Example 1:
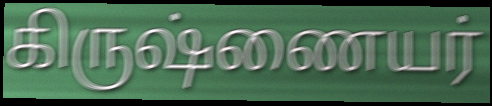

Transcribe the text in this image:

கிருஷ்ணையர்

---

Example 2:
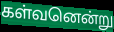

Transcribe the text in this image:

கள்வனென்று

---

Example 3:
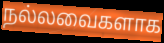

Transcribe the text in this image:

நல்லவைகளாக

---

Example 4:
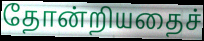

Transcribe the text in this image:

தோன்றியதைச்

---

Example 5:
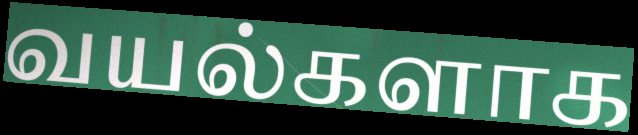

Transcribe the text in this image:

வயல்களாக